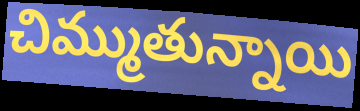
చిమ్ముతున్నాయి